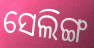
ସେଲିଙ୍ଗ